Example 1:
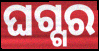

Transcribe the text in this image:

ଘଗ୍ଗର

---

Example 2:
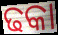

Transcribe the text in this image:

ଢକା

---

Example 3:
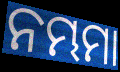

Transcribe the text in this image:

ନମ୍ଭମା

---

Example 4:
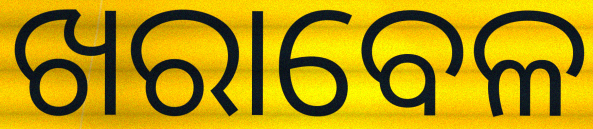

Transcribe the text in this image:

ଖରାବେଳ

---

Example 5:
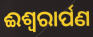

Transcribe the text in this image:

ଈଶ୍ୱରାର୍ପଣ